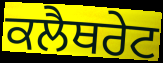
ਕਲੈਥਰੇਟ